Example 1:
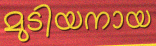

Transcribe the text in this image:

മുടിയനായ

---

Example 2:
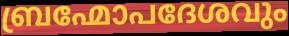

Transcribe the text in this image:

ബ്രഹ്മോപദേശവും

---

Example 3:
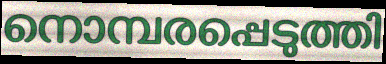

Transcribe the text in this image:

നൊമ്പരപ്പെടുത്തി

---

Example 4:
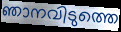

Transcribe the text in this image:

ഞാനവിടുത്തെ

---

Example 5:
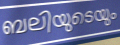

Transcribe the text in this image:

ബലിയുടെയും